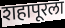
शहापूरला